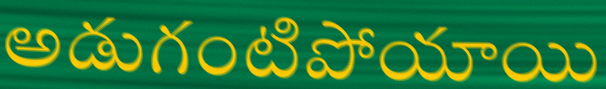
అడుగంటిపోయాయి